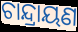
ଚାନ୍ଦ୍ରାୟଣ